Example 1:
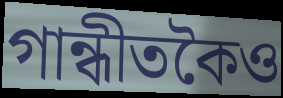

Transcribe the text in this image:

গান্ধীতকৈও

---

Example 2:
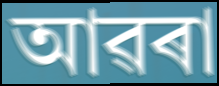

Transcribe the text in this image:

আৱৰা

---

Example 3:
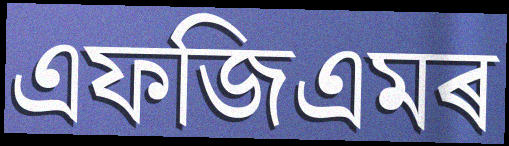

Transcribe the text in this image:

এফজিএমৰ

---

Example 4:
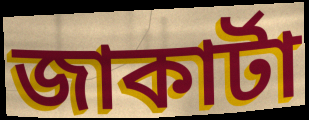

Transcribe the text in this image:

জাকাৰ্টা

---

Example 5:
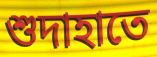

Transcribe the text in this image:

শুদাহাতে